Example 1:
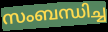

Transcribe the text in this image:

സംബന്ധിച്ച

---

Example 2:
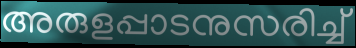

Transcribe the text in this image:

അരുളപ്പാടനുസരിച്ച്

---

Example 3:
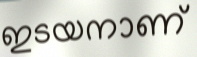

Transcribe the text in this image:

ഇടയനാണ്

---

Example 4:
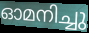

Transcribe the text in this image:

ഓമനിച്ചു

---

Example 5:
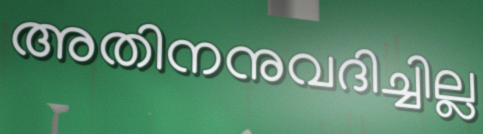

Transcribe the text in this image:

അതിനനുവദിച്ചില്ല